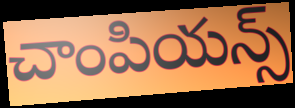
చాంపియన్స్